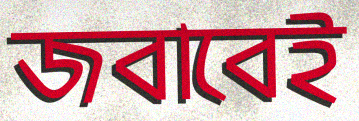
জবাবেই